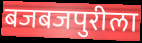
बजबजपुरीला